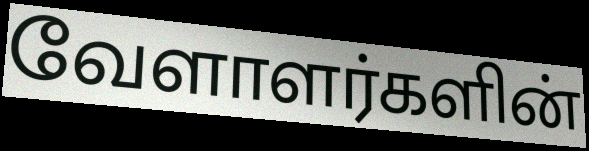
வேளாளர்களின்